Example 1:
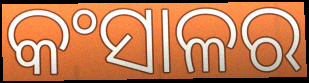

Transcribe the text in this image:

କଂସାଳର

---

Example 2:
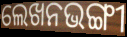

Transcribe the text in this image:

ଲେଖନଭଙ୍ଗୀ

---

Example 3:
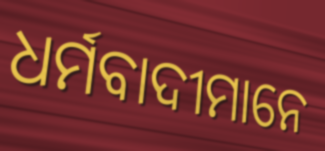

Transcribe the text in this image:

ଧର୍ମବାଦୀମାନେ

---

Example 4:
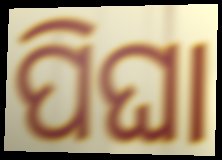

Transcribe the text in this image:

ପିଘା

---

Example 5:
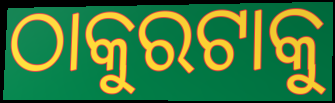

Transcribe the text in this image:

ଠାକୁରଟାକୁ